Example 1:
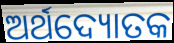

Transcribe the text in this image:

ଅର୍ଥଦ୍ୟୋତକ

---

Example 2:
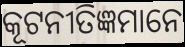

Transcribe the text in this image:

କୂଟନୀତିଜ୍ଞମାନେ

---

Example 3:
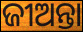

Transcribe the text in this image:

ଜୀଅନ୍ତା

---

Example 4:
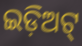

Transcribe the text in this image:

ଇଡ଼ିଅଟ୍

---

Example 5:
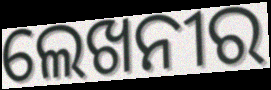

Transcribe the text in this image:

ଲେଖନୀର